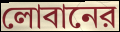
লোবানের